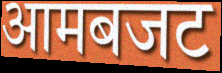
आमबजट